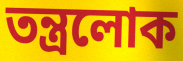
তন্ত্রলোক